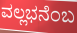
ವಲ್ಲಭನೆಂಬ